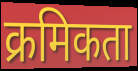
क्रमिकता